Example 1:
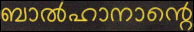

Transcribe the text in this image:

ബാൽഹാനാന്റെ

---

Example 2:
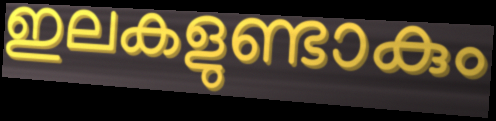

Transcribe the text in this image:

ഇലകളുണ്ടാകും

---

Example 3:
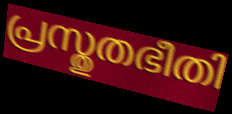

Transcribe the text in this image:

പ്രസ്തുതഭീതി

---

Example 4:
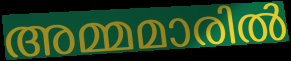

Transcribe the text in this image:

അമ്മമാരിൽ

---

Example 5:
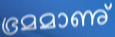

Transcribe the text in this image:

ഭ്രമമാണു്